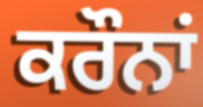
ਕਰੌਨਾਂ